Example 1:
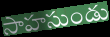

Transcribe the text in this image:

సాహసుండు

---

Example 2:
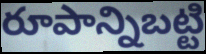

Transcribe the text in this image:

రూపాన్నిబట్టి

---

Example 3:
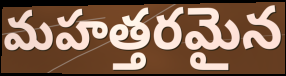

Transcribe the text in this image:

మహత్తరమైన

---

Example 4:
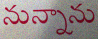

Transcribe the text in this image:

నున్నాను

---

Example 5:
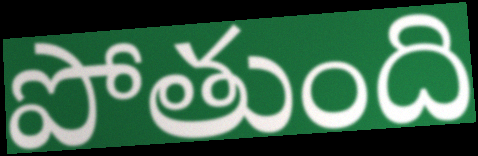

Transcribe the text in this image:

పోతుంది